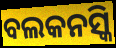
ବଲକନସ୍କି